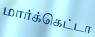
மார்க்கெட்டா